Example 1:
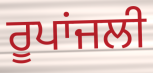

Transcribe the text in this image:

ਰੂਪਾਂਜਲੀ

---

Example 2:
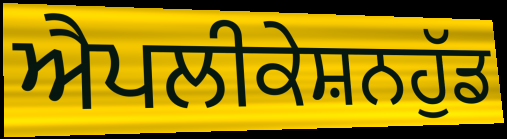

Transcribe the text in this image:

ਐਪਲੀਕੇਸ਼ਨਹੁੱਡ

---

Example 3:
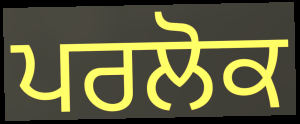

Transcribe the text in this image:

ਪਰਲੋਕ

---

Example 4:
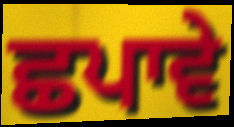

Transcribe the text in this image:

ਛਪਾਵੇ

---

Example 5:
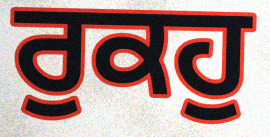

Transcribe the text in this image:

ਰੁਕਹੁ